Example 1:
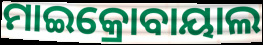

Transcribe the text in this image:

ମାଇକ୍ରୋବାୟାଲ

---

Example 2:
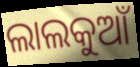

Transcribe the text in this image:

ଲାଲକୁଆଁ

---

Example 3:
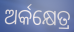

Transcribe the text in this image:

ଅର୍କକ୍ଷେତ୍ର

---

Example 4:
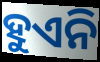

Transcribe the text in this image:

ହୁଏନି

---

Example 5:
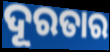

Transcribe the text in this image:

ଦୂରତାର